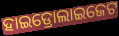
ହାଇଡ୍ରୋଲାଇଜେଟ